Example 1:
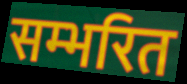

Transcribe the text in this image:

सम्भरित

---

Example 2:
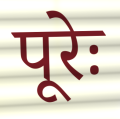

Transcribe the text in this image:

पूरेः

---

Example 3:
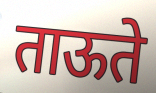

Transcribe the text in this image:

ताऊते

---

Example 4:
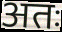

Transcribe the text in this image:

अतः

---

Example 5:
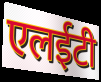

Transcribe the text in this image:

एलईटी